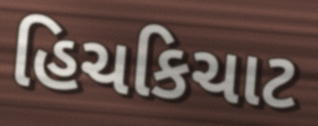
હિચકિચાટ